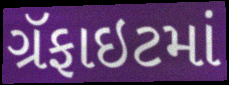
ગ્રૅફાઇટમાં